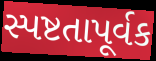
સ્પષ્ટતાપૂર્વક